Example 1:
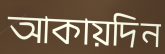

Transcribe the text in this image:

আকায়দিন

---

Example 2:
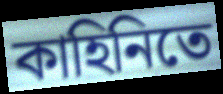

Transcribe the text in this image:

কাহিনিতে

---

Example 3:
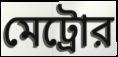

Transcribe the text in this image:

মেট্রোর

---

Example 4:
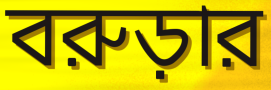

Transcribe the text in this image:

বরুড়ার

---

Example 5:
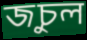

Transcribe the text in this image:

জচুল